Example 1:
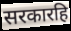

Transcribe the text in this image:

सरकारहि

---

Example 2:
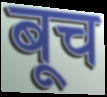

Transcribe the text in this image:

बूच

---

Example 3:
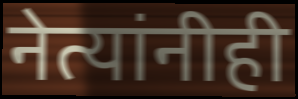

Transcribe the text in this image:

नेत्यांनीही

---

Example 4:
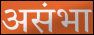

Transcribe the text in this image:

असंभा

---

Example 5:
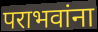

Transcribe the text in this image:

पराभवांना